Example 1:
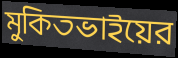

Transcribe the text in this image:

মুকিতভাইয়ের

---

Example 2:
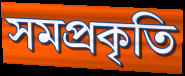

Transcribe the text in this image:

সমপ্রকৃতি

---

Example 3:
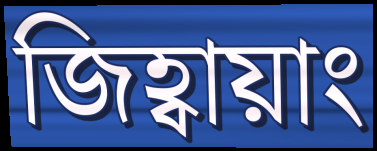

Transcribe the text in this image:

জিহ্বায়াং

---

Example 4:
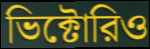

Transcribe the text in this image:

ভিক্টোরিও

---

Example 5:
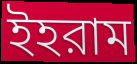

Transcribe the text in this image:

ইহরাম